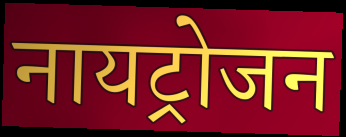
नायट्रोजन